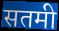
सतमी